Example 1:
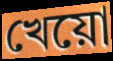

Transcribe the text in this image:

খেয়ো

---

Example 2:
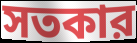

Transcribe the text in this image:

সতকার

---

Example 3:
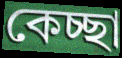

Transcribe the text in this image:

কেচ্ছা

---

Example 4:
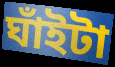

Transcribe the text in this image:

ঘাঁইটা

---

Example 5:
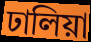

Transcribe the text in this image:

ঢালিয়া